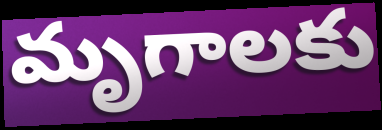
మృగాలకు